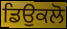
ਡਿਉਕਲੋ